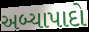
અબ્યાપાદો